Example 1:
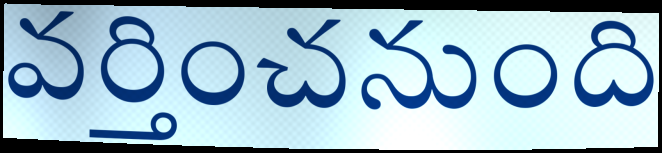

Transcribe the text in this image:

వర్తించనుంది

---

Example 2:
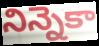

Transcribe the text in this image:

నిన్నెకా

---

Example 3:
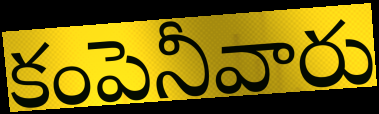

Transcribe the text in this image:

కంపెనీవారు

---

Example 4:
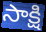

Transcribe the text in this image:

సాక్షి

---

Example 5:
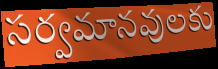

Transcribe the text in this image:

సర్వమానవులకు